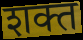
शक्त